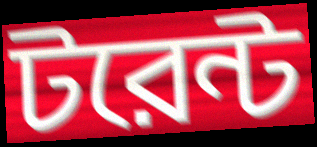
টরেন্ট